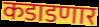
कडाडणार